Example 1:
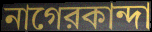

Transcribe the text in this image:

নাগেরকান্দা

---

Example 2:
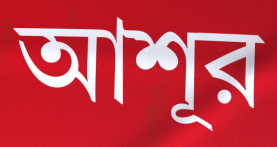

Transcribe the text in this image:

আশূর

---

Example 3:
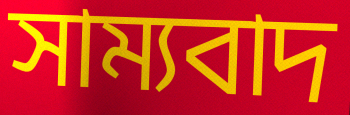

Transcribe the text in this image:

সাম্যবাদ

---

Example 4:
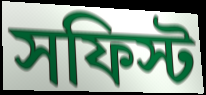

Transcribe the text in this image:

সফিস্ট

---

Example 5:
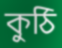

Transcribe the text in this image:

কুঠি